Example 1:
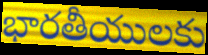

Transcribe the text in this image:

భారతీయులకు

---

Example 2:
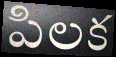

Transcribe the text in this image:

పిలక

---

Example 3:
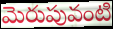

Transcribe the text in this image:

మెరుపువంటి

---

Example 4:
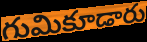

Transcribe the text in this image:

గుమికూడారు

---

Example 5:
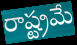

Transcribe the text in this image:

రాష్ట్రమే